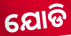
ଯୋଡି